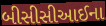
બીસીસીઆઈના